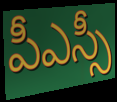
పీఎస్సీ